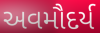
અવમૌદર્ય